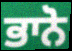
ਭਾਨੋ